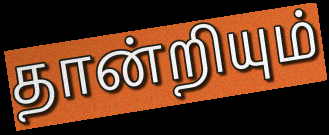
தான்றியும்